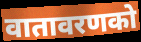
वातावरणको